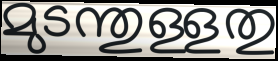
മുടന്തുള്ളതു